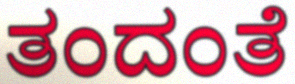
ತಂದಂತೆ